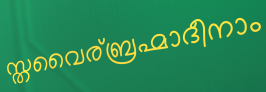
സ്തവൈര്ബ്രഹ്മാദീനാം